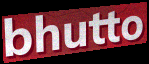
bhutto